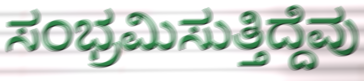
ಸಂಭ್ರಮಿಸುತ್ತಿದ್ದೆವು